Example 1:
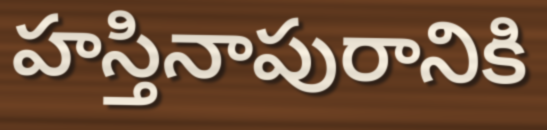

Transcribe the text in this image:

హస్తినాపురానికి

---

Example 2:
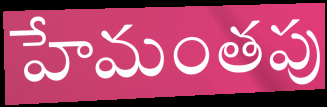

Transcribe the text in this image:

హేమంతపు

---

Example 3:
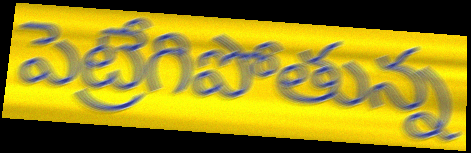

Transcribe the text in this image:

పెట్రేగిపోతున్న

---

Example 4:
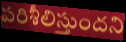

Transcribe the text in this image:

పరిశీలిస్తుందని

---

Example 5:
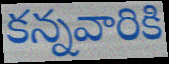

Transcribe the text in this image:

కన్నవారికి